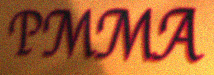
PMMA